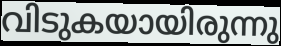
വിടുകയായിരുന്നു